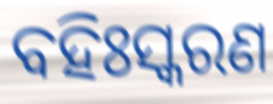
ବହିଃସ୍କରଣ